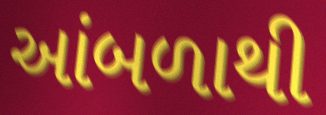
આંબળાથી